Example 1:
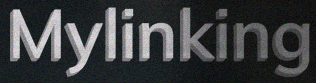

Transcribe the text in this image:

Mylinking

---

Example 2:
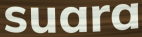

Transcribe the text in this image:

suara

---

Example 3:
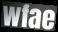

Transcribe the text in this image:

wfae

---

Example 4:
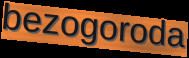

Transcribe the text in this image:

bezogoroda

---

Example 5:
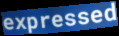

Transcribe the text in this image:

expressed